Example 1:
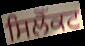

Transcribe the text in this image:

ਸਿਲੈੱਕਟ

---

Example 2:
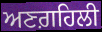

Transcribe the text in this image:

ਅਣਗ਼ਹਿਲੀ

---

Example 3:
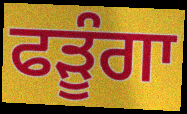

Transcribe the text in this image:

ਫੜੂੰਗਾ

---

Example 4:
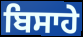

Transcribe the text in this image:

ਬਿਸਾਹੇ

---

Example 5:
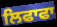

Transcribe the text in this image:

ਲਿਫਾਫਾ